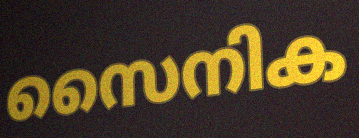
സൈനിക